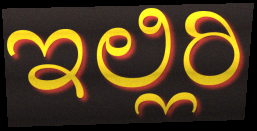
ಇಲ್ಲಿರಿ